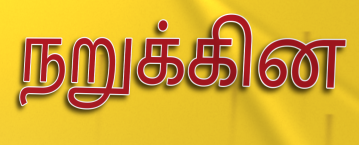
நறுக்கின